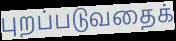
புறப்படுவதைக்